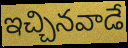
ఇచ్చినవాడే